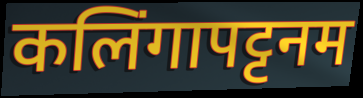
कलिंगापट्टनम